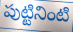
పుట్టినింటి